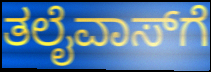
ತಲೈವಾಸ್‌ಗೆ